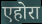
एहोरा